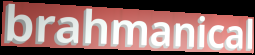
brahmanical